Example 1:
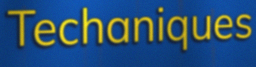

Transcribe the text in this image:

Techaniques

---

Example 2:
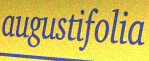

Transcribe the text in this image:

augustifolia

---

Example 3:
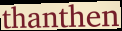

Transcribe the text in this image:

thanthen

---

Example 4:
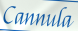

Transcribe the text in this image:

Cannula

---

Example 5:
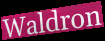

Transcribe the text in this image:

Waldron